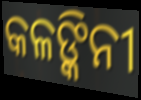
କଳଙ୍କିନୀ